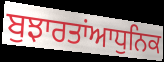
ਬੁਝਾਰਤਾਂਆਧੁਨਿਕ